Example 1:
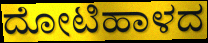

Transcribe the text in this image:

ದೋಟಿಹಾಳದ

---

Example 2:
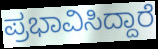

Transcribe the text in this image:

ಪ್ರಭಾವಿಸಿದ್ದಾರೆ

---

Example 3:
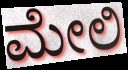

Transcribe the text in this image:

ಮೇಲಿ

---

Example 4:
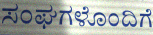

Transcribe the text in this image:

ಸಂಘಗಳೊಂದಿಗೆ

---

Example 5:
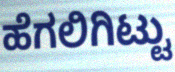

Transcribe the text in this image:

ಹೆಗಲಿಗಿಟ್ಟು